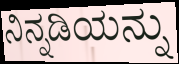
ನಿನ್ನಡಿಯನ್ನು